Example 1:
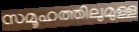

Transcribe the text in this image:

സമൂഹത്തിലുമുള്ള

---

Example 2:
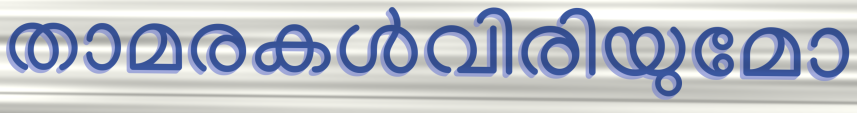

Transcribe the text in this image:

താമരകൾവിരിയുമോ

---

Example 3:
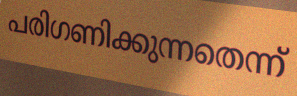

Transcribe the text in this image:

പരിഗണിക്കുന്നതെന്ന്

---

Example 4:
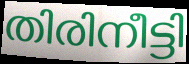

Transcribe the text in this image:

തിരിനീട്ടി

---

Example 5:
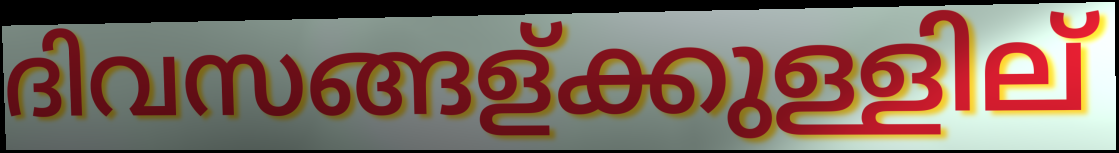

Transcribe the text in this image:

ദിവസങ്ങള്ക്കുള്ളില്